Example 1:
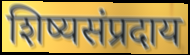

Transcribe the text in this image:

शिष्यसंप्रदाय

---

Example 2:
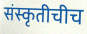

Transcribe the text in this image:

संस्कृतीचीच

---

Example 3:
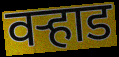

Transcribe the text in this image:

वऱ्हाड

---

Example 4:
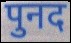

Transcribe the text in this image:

पुनद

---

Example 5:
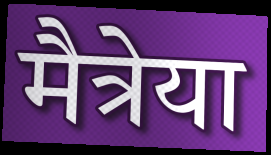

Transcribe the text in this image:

मैत्रेया